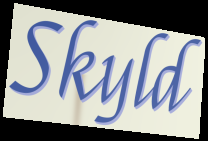
Skyld